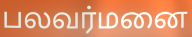
பலவர்மனை